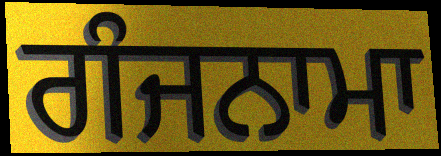
ਗੰਜਨਾਮਾ